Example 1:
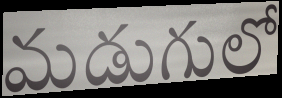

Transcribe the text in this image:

మడుగులో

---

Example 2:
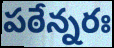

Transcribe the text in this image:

పఠేన్నరః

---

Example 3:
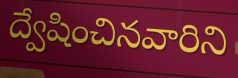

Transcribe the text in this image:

ద్వేషించినవారిని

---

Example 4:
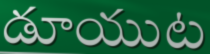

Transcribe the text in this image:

డూయుట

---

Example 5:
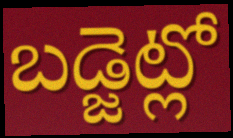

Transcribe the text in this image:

బడ్జెట్లో